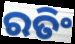
ରତିଂ